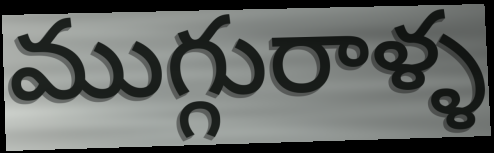
ముగ్గురాళ్ళ